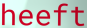
heeft